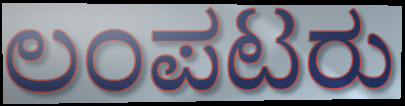
ಲಂಪಟರು